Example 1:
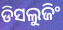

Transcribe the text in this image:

ଡିସଲୁଜିଂ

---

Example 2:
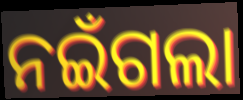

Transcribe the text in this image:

ନଇଁଗଲା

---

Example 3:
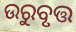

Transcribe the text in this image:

ଉରୁବୃତ୍ତ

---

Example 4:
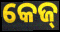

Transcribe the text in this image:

କେଜ୍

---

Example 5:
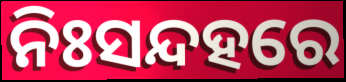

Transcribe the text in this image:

ନିଃସନ୍ଦହରେ